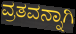
ವ್ರತವನ್ನಾಗಿ